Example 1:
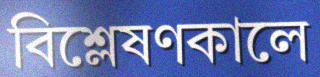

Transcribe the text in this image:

বিশ্লেষণকালে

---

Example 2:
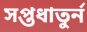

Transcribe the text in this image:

সপ্তধাতুর্ন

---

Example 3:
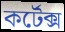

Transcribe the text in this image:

কর্টেক্স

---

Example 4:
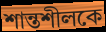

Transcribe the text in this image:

শান্তশীলকে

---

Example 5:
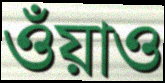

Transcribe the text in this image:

ওঁয়াও